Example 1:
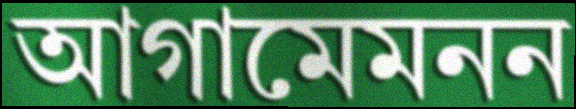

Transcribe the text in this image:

আগামেমনন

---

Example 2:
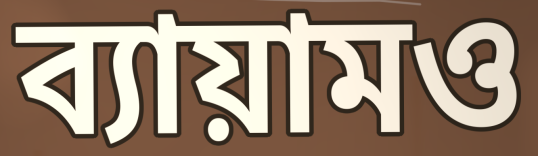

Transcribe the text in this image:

ব্যায়ামও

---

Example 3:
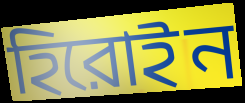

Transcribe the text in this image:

হিরোইন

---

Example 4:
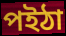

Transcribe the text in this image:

পইঠা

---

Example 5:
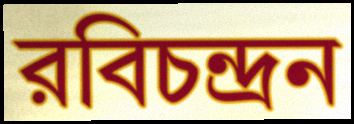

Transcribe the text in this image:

রবিচন্দ্রন